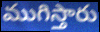
ముగిస్తారు